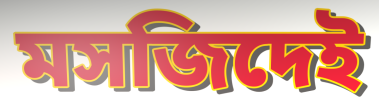
মসজিদেই